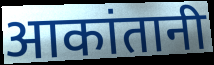
आकांतानी